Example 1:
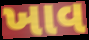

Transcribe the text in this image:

ખાવ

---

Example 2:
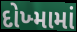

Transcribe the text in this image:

દોખ્મામાં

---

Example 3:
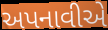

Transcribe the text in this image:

અપનાવીએ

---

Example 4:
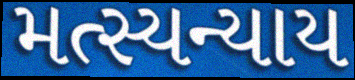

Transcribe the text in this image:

મત્સ્યન્યાય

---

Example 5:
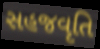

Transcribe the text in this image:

સહજવૃતિ